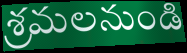
శ్రమలనుండి